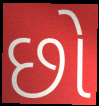
છો